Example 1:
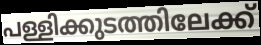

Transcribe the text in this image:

പള്ളിക്കുടത്തിലേക്ക്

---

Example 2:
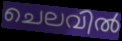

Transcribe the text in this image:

ചെലവിൽ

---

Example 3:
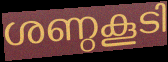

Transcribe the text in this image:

ശണ്ഠകൂടി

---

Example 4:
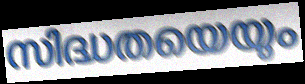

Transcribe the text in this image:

സിദ്ധതയെയും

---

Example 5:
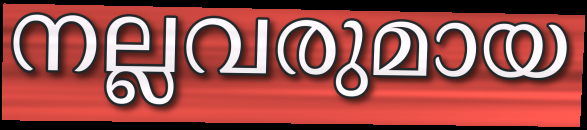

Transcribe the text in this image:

നല്ലവരുമായ